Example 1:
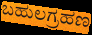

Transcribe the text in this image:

ಬಹುಲಗ್ರಹಣ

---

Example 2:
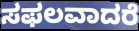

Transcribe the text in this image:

ಸಫಲವಾದರೆ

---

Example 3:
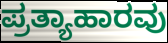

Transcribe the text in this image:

ಪ್ರತ್ಯಾಹಾರವು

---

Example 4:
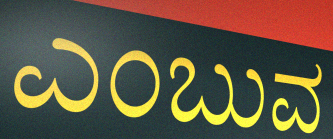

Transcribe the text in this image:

ಎಂಬುವ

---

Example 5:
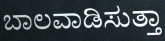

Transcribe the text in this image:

ಬಾಲವಾಡಿಸುತ್ತಾ